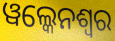
ୱଲ୍କେନଶ୍ୱର